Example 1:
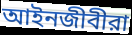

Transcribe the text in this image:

আইনজীবীরা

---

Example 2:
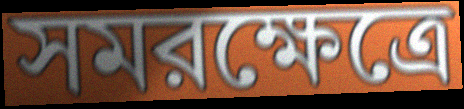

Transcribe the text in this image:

সমরক্ষেত্রে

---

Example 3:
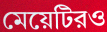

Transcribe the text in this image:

মেয়েটিরও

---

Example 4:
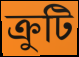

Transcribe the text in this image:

ক্রুটি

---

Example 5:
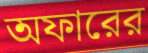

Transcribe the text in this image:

অফারের